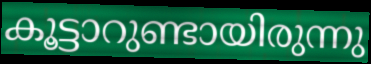
കൂട്ടാറുണ്ടായിരുന്നു